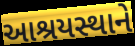
આશ્રયસ્થાને